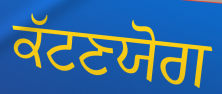
ਕੱਟਣਯੋਗ